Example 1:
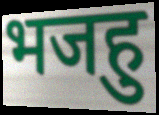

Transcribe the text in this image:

भजहु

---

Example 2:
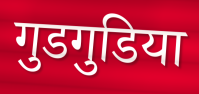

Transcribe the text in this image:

गुडगुडिया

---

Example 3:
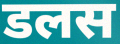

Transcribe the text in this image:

डलस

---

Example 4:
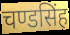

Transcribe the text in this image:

चण्डसिंह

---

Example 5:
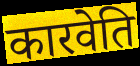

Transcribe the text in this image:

कारवेति